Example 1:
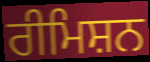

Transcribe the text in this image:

ਰੀਮਿਸ਼ਨ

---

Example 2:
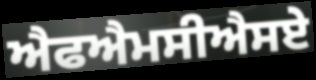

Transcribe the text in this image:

ਐਫਐਮਸੀਐਸਏ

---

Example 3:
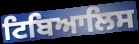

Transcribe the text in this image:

ਟਿਬਿਆਲਿਸ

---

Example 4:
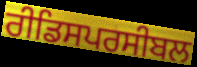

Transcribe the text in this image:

ਰੀਡਿਸਪਰਸੀਬਲ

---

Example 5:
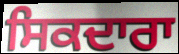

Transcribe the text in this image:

ਸਿਕਦਾਰਾ